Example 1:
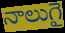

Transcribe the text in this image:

నాలుగై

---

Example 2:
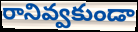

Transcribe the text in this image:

రానివ్వకుండా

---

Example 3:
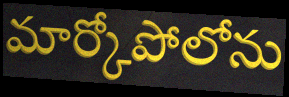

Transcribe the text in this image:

మార్కోపోలోను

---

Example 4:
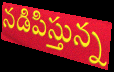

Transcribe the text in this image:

నడిపిస్తున్న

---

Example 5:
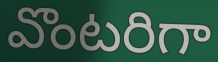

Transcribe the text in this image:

వొంటరిగా